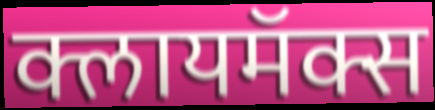
क्लायमॅक्स